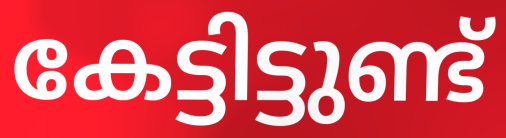
കേട്ടിട്ടുണ്ട്